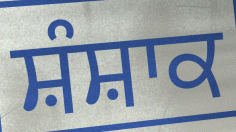
ਸ਼ੰਸ਼ਾਕ